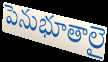
పెనుభూతాలై